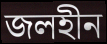
জলহীন